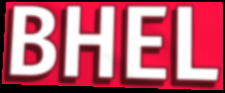
BHEL